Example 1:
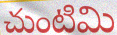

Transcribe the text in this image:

చుంటిమి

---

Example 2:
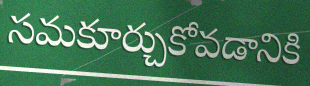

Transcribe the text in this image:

సమకూర్చుకోవడానికి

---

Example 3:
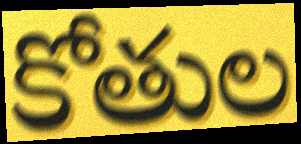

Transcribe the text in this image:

కోతుల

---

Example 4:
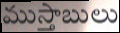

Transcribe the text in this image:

ముస్తాబులు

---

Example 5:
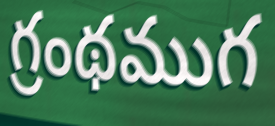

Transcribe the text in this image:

గ్రంథముగ